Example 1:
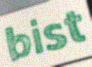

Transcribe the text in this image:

bist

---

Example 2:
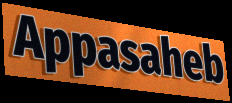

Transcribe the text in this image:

Appasaheb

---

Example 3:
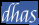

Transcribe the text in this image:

dhas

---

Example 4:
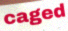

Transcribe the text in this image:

caged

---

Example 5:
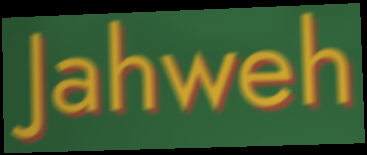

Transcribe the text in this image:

Jahweh